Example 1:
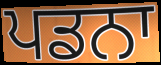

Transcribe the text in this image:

ਪਡਨਾ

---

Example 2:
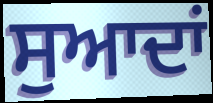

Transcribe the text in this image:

ਸੁਆਦਾਂ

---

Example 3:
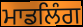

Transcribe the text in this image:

ਮਾਡਲਿੰਗ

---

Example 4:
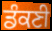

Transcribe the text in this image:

ਡੰਕਣੀ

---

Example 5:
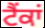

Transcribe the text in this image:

ਟੈਂਕਾਂ